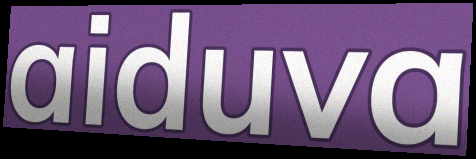
aiduva